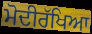
ਮੋਦੀਰੱਖਿਆ